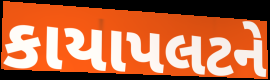
કાયાપલટને